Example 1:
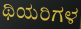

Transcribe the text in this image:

ಥಿಯರಿಗಳ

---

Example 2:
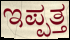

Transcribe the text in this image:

ಇಪ್ಪತ್ತ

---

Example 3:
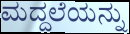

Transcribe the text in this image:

ಮದ್ದಲೆಯನ್ನು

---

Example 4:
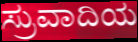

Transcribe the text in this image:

ಸ್ರುವಾದಿಯ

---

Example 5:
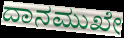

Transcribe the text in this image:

ದಾನಮುಖೇ